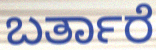
ಬರ್ತಾರೆ